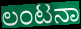
ಲಂಟನಾ